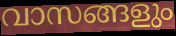
വാസങ്ങളും